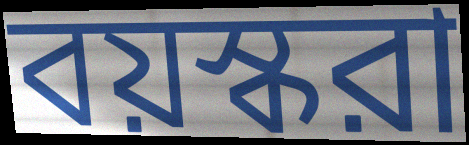
বয়স্করা